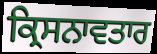
ਕ੍ਰਿਸਨਾਵਤਾਰ